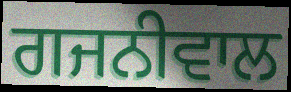
ਗਜਨੀਵਾਲ